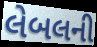
લેબલની